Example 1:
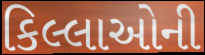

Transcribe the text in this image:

કિલ્લાઓની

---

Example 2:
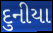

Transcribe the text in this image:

દુનીયા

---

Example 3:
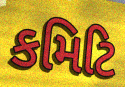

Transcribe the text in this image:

કમિટિ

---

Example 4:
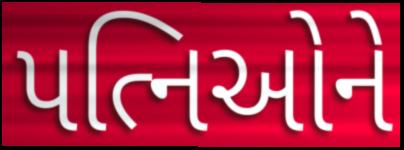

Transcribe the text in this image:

પત્નિઓને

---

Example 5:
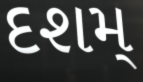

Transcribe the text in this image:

દશમ્